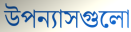
উপন্যাসগুলো